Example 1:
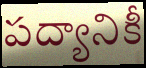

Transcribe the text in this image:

పద్యానికీ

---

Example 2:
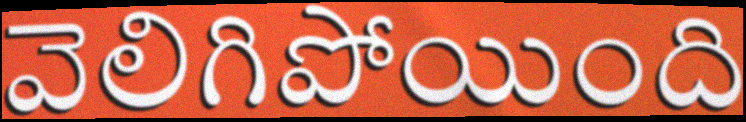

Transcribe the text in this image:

వెలిగిపోయింది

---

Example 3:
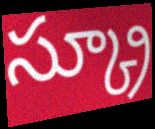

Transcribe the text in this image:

స్క్రూ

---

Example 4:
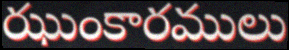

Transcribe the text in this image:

ఝుంకారములు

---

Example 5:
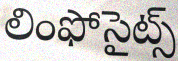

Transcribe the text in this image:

లింఫోసైట్స్